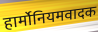
हार्मोनियमवादक